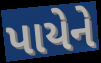
પાયેને